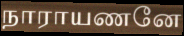
நாராயணனே